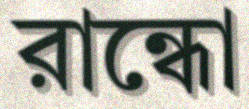
রান্ধো